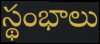
స్థంభాలు